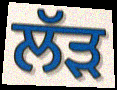
ਲੱੜ